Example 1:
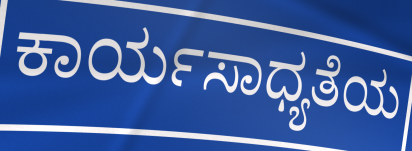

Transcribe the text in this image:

ಕಾರ್ಯಸಾಧ್ಯತೆಯ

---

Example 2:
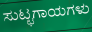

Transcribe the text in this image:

ಸುಟ್ಟಗಾಯಗಳು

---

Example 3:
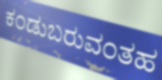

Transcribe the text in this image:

ಕಂಡುಬರುವಂತಹ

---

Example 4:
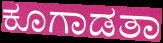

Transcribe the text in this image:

ಕೂಗಾಡತಾ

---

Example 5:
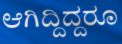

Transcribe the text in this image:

ಆಗಿದ್ದಿದ್ದರೂ